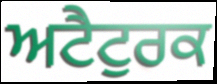
ਅਟੈਟੁਰਕ